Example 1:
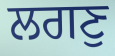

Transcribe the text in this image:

ਲਗਣੁ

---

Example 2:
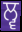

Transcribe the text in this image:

ਲ੍ਵ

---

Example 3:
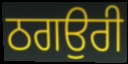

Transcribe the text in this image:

ਠਗਉਰੀ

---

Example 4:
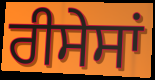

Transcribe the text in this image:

ਰੀਸੇਸਾਂ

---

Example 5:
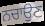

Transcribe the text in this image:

ਨਚਾਉਣ